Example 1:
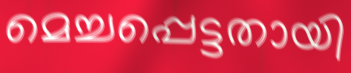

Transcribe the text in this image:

മെച്ചപ്പെട്ടതായി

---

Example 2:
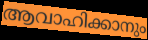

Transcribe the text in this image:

ആവാഹിക്കാനും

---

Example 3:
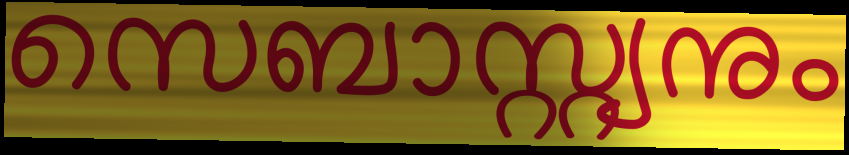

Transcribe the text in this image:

സെബാസ്റ്റ്യനും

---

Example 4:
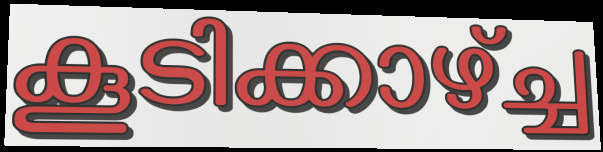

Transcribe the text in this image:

കൂടിക്കാഴ്ച്ച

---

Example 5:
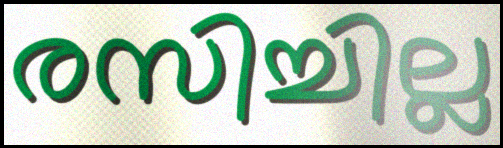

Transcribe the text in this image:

രസിച്ചില്ല